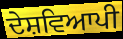
ਦੇਸ਼ਵਿਆਪੀ